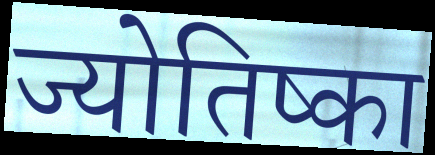
ज्योतिष्का